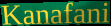
Kanafani